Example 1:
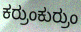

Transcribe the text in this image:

ಕರ್ರುಂಕುರ್ರುಂ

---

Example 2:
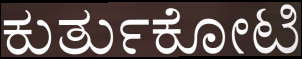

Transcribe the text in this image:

ಕುರ್ತುಕೋಟಿ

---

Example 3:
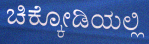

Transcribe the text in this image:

ಚಿಕ್ಕೋಡಿಯಲ್ಲಿ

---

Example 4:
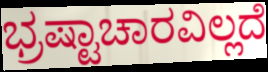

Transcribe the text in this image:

ಭ್ರಷ್ಟಾಚಾರವಿಲ್ಲದೆ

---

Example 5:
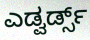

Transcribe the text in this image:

ಎಡ್ವರ್ಡ್ಸ್